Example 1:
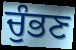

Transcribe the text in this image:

ਚੁੰਭਣ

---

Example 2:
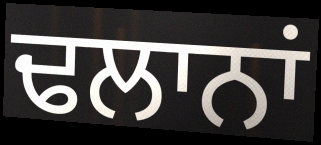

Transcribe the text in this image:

ਢਲਾਨਾਂ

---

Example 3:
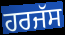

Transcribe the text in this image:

ਹਰਜੱਸ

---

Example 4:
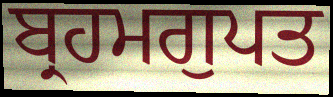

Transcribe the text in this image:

ਬ੍ਰਹਮਗੁਪਤ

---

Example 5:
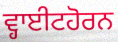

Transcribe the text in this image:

ਵ੍ਹਾਈਟਹੋਰਨ